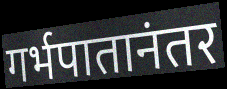
गर्भपातानंतर